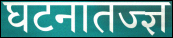
घटनातज्ज्ञ